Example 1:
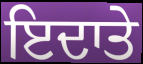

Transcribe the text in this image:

ਇਦਾਤੇ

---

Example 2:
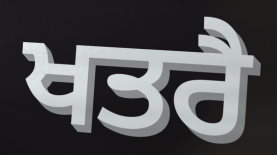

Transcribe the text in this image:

ਖਤਰੈ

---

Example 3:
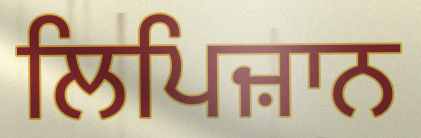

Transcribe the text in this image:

ਲਿਪਿਜ਼ਾਨ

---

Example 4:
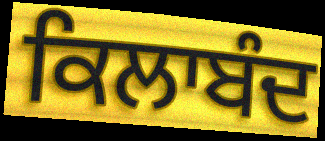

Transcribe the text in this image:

ਕਿਲਾਬੰਦ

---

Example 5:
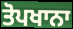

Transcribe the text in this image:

ਤੋਪਖਾਨਾ